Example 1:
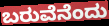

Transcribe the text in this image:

ಬರುವೆನೆಂದು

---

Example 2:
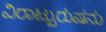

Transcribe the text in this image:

ವಿರಾಟ್ಪುರುಷನು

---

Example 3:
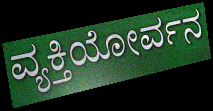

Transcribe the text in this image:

ವ್ಯಕ್ತಿಯೋರ್ವನ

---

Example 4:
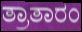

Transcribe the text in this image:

ತ್ರಾತಾರಂ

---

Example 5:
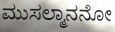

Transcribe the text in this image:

ಮುಸಲ್ಮಾನನೋ